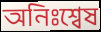
অনিঃশ্বেষ